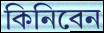
কিনিবেন